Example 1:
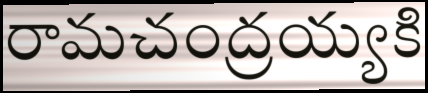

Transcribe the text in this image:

రామచంద్రయ్యకి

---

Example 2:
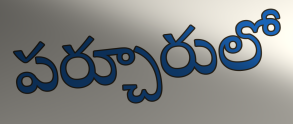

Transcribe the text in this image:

పర్చూరులో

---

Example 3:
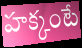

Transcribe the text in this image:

హక్కంటే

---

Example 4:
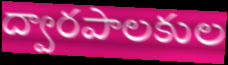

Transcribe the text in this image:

ద్వారపాలకుల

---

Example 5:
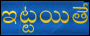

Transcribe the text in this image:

ఇట్టయితే